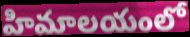
హిమాలయంలో